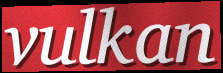
vulkan